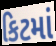
કિટમાં